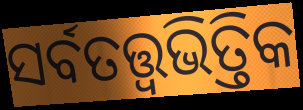
ସର୍ବତତ୍ତ୍ୱଭିତ୍ତିକ